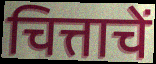
चित्ताचें